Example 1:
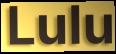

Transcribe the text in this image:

Lulu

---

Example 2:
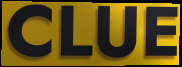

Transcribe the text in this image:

CLUE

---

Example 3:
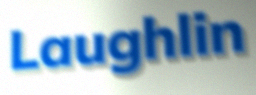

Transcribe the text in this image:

Laughlin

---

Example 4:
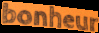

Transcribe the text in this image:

bonheur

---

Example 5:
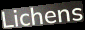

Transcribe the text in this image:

Lichens